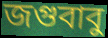
জগুবাবু